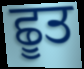
ਛੂਤ